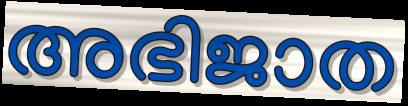
അഭിജാത